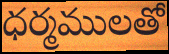
ధర్మములతో